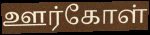
ஊர்கோள்